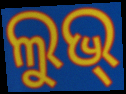
ଲୁଭ୍